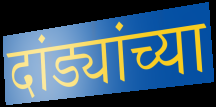
दांड्यांच्या